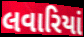
લવારિયાં